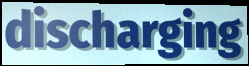
discharging